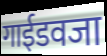
गाईडवजा